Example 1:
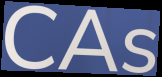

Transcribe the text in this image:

CAs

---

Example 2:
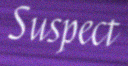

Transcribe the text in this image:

Suspect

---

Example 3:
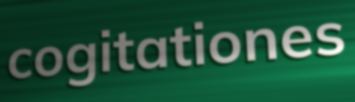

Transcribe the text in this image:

cogitationes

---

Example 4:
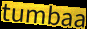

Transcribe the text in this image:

tumbaa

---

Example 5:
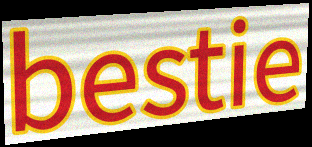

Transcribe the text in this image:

bestie